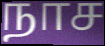
நாச